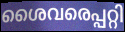
ശൈവരെപ്പറ്റി